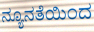
ನ್ಯೂನತೆಯಿಂದ